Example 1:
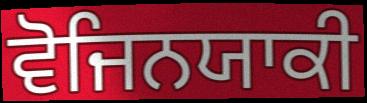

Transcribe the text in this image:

ਵੋਜਿਨਯਾਕੀ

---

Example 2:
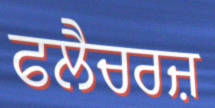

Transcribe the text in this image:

ਫਲੈਚਰਜ਼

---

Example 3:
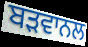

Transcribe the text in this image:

ਬੜਵਾਨਲ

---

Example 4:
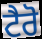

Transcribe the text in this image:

ਟੈਰੋ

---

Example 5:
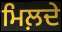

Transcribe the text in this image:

ਮਿਲ਼ਦੇ